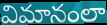
విమానంలా